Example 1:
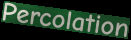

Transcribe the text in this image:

Percolation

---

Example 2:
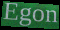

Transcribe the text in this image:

Egon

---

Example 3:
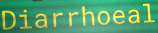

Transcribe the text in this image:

Diarrhoeal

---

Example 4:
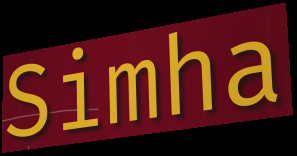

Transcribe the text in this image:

Simha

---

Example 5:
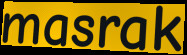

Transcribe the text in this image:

masrak